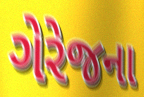
ગેરેજના